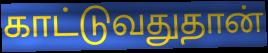
காட்டுவதுதான்